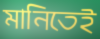
মানিতেই